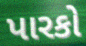
પારકો